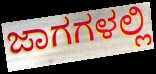
ಜಾಗಗಳಲ್ಲಿ